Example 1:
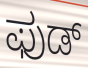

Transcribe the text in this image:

ಫುಡ್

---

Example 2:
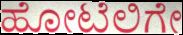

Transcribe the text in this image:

ಹೋಟೆಲಿಗೇ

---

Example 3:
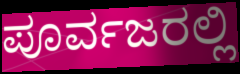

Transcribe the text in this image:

ಪೂರ್ವಜರಲ್ಲಿ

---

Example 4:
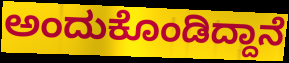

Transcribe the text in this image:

ಅಂದುಕೊಂಡಿದ್ದಾನೆ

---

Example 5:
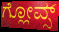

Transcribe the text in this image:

ಗ್ಲೋವ್ಸ್